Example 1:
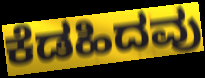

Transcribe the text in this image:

ಕೆಡಹಿದವು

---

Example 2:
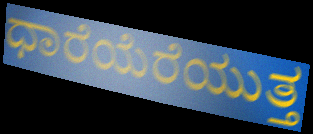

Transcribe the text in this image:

ಧಾರೆಯೆರೆಯುತ್ತ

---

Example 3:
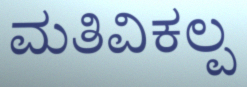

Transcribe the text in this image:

ಮತಿವಿಕಲ್ಪ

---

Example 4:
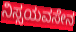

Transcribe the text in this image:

ನಿಸ್ಸಯವಸೇನ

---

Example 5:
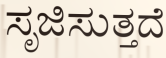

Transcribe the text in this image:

ಸೃಜಿಸುತ್ತದೆ